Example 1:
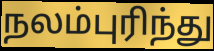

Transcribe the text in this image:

நலம்புரிந்து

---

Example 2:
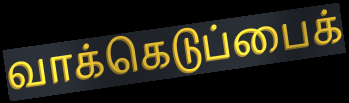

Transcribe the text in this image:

வாக்கெடுப்பைக்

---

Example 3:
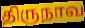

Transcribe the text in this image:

திருநாவ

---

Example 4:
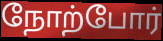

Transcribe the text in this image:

நோற்போர்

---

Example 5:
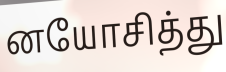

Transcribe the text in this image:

னயோசித்து